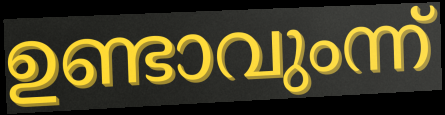
ഉണ്ടാവുംന്ന്